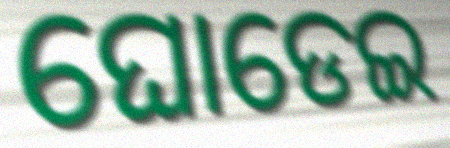
ଘୋଡେଇ